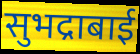
सुभद्राबाई